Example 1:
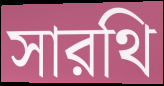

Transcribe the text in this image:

সারথি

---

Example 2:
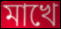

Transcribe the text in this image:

মাখে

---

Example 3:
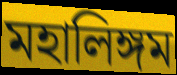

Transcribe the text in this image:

মহালিঙ্গম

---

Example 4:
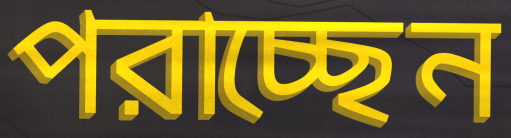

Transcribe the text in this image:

পরাচ্ছেন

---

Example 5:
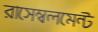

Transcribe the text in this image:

রাসেম্বলমেন্ট